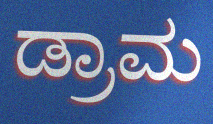
ಡ್ರಾಮ